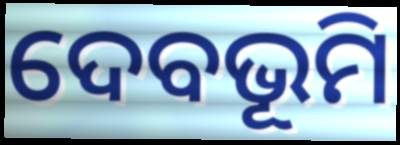
ଦେବଭୂମି